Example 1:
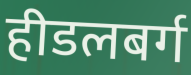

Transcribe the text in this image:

हीडलबर्ग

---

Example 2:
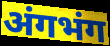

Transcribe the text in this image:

अंगभंग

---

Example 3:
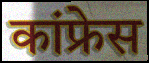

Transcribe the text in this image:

कांफ्रेस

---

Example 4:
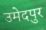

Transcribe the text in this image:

उमेदपुर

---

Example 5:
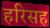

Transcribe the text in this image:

हरिसह